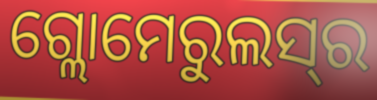
ଗ୍ଲୋମେରୁଲସ୍‌ର